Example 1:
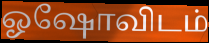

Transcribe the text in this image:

ஓஷோவிடம்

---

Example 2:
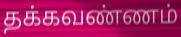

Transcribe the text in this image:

தக்கவண்ணம்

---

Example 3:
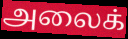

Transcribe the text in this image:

அலைக்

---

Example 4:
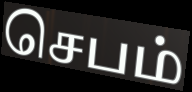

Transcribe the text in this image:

செபம்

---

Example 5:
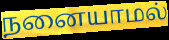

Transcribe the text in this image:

நனையாமல்